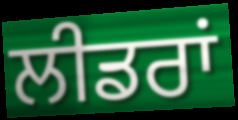
ਲੀਡਰਾਂ